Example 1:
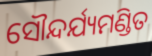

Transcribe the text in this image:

ସୌନ୍ଦର୍ଯ୍ୟମଣ୍ଡିତ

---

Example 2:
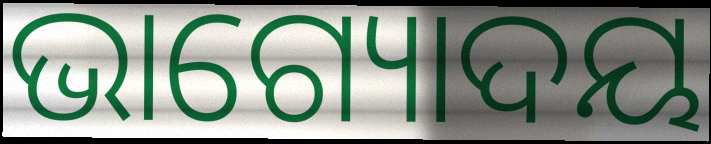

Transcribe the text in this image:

ଭାଗ୍ୟୋଦୟ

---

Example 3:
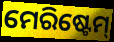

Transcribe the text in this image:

ମେରିଷ୍ଟେମ୍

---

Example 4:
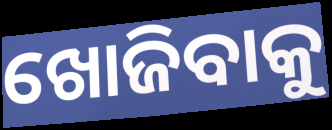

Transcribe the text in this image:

ଖୋଜିବାକୁ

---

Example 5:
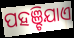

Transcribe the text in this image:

ପହଞ୍ଚିଯାଏ